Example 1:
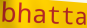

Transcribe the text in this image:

bhatta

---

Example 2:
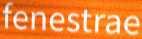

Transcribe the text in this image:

fenestrae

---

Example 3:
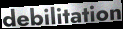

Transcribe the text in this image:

debilitation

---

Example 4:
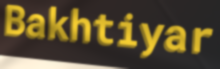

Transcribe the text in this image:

Bakhtiyar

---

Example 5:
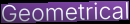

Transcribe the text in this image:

Geometrical